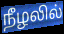
நீழலில்